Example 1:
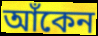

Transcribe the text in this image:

আঁকেন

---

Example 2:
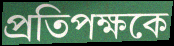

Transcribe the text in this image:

প্রতিপক্ষকে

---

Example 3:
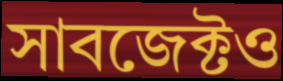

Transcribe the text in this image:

সাবজেক্টও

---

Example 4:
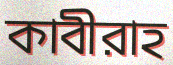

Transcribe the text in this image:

কাবীরাহ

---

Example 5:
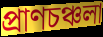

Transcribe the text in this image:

প্রাণচঞ্চলা